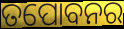
ତପୋବନର